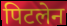
पिटलेन